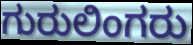
ಗುರುಲಿಂಗರು